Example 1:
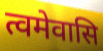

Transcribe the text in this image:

त्वमेवासि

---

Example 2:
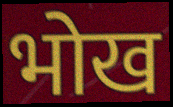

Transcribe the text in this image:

भोख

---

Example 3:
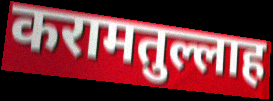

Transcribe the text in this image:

करामतुल्लाह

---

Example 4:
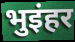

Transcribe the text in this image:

भुइंहर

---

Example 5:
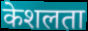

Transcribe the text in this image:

केशलता